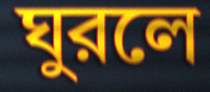
ঘুরলে